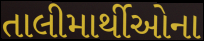
તાલીમાર્થીઓના